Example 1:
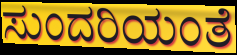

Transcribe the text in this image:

ಸುಂದರಿಯಂತೆ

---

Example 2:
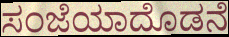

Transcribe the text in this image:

ಸಂಜೆಯಾದೊಡನೆ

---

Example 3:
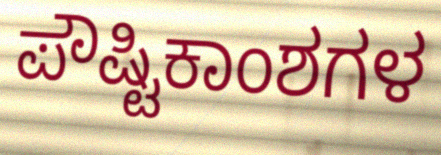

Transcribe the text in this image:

ಪೌಷ್ಟಿಕಾಂಶಗಳ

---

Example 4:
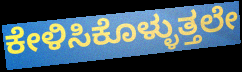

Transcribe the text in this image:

ಕೇಳಿಸಿಕೊಳ್ಳುತ್ತಲೇ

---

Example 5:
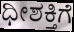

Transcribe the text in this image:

ಧೀಶಕ್ತಿಗೆ